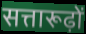
सत्तारूढ़ों